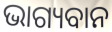
ଭାଗ୍ୟବାନ